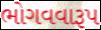
ભોગવવારૂપ